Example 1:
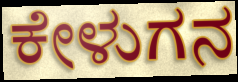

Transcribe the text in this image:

ಕೇಳುಗನ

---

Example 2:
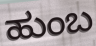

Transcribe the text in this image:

ಹುಂಬ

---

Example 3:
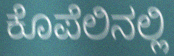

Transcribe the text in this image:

ಕೊಪೆಲಿನಲ್ಲಿ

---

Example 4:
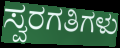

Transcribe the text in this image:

ಸ್ವರಗತಿಗಳು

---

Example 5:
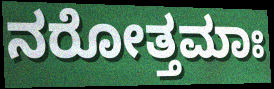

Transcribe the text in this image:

ನರೋತ್ತಮಾಃ